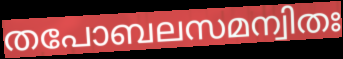
തപോബലസമന്വിതഃ